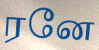
ரனே